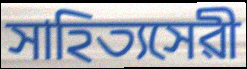
সাহিত্যসেৱী